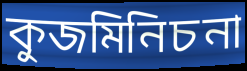
কুজমিনিচনা